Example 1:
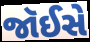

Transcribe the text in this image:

જૉઈસે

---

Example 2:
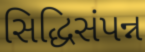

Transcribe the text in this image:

સિદ્ધિસંપન્ન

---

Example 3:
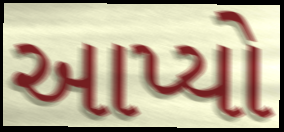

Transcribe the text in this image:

આપ્યો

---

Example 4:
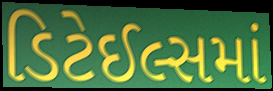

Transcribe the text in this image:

ડિટેઈલ્સમાં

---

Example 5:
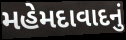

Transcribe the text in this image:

મહેમદાવાદનું